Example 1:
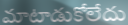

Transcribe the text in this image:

మాటాడుకోలేదు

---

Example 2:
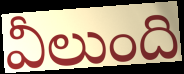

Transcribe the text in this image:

వీలుంది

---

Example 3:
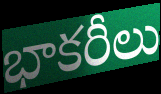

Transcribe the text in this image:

భాకరీలు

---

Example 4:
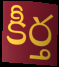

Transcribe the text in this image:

కీర్త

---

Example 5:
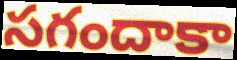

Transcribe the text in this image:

సగందాకా